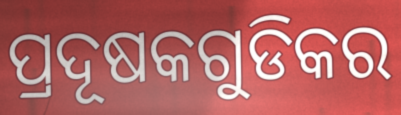
ପ୍ରଦୂଷକଗୁଡିକର